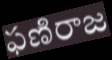
ఫణిరాజ